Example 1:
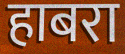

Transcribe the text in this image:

हाबरा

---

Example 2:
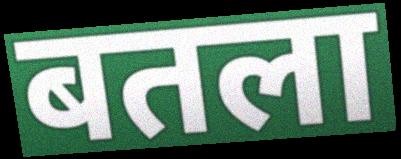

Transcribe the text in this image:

बतला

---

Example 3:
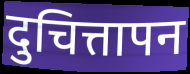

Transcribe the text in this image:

दुचित्तापन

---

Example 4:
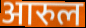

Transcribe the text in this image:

आरुल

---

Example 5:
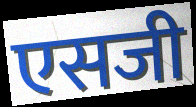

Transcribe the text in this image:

एसजी